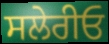
ਸਲੇਰੀਓ